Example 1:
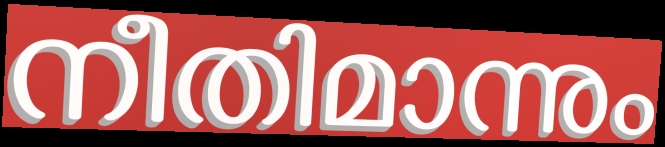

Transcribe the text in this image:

നീതിമാന്നും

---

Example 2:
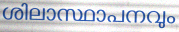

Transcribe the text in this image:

ശിലാസ്ഥാപനവും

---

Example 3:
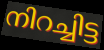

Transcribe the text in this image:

നിറച്ചിട്ട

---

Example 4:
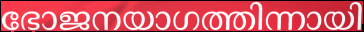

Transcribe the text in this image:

ഭോജനയാഗത്തിന്നായി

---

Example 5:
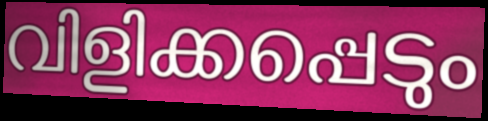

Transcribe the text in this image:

വിളിക്കപ്പെടും